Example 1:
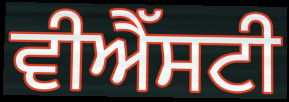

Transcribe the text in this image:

ਵੀਐੱਸਟੀ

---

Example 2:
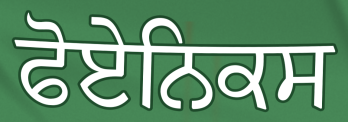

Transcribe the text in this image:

ਫੋਏਨਿਕਸ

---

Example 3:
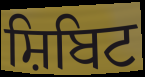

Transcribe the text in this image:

ਸ਼ਿਬਿਟ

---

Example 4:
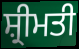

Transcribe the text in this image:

ਸ਼੍ਰੀਮਤੀ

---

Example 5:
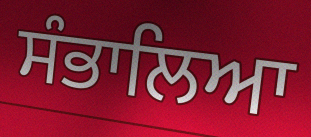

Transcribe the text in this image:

ਸੰਭਾਲਿਆ